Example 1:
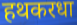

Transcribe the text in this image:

हथकरधा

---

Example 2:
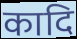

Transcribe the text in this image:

कादि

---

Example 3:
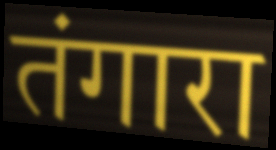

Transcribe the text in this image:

तंगारा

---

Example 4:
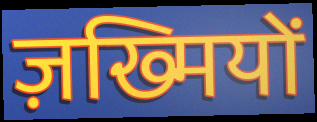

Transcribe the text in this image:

ज़ख्मियों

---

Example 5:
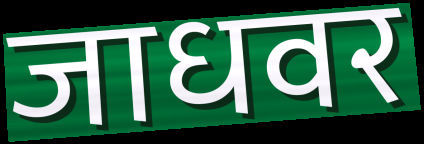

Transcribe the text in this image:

जाधवर